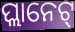
ପ୍ଲାନେଟ୍